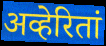
अव्हेरितां